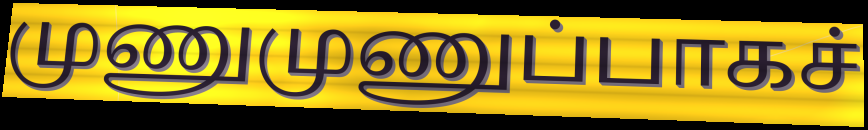
முணுமுணுப்பாகச்